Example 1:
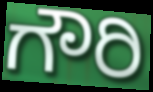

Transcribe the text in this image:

ಗೌರಿ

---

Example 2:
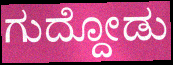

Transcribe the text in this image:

ಗುದ್ದೋಡು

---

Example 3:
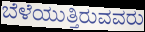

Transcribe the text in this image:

ಬೆಳೆಯುತ್ತಿರುವವರು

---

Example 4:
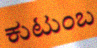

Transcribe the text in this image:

ಕುಟುಂಬ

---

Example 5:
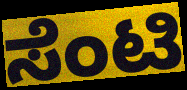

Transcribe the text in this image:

ಸೆಂಟಿ